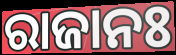
ରାଜାନଃ